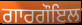
ਗਾਰਗੌਇਲ